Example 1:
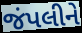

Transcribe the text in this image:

જંપલીને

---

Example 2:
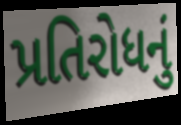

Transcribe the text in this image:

પ્રતિરોધનું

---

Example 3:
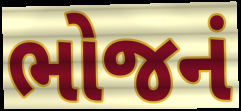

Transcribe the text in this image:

ભોજનં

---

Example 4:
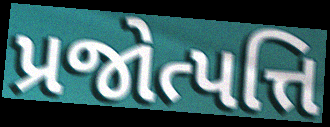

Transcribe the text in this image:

પ્રજોત્પત્તિ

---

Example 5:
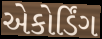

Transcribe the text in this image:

એકોર્ડિંગ